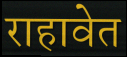
राहावेत